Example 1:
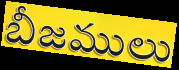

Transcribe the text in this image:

బీజములు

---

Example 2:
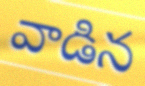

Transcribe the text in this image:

వాడిన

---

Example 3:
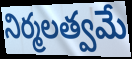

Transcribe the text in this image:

నిర్మలత్వమే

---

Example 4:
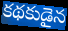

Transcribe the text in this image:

కథకుడైన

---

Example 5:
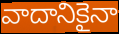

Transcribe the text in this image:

వాదానికైనా